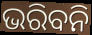
ଭରିବନି